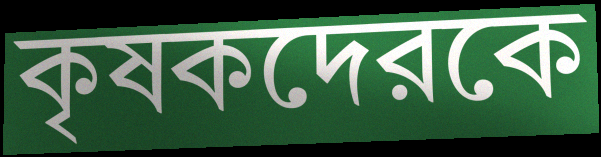
কৃষকদেরকে